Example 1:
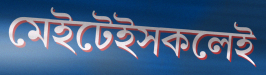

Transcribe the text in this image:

মেইটেইসকলেই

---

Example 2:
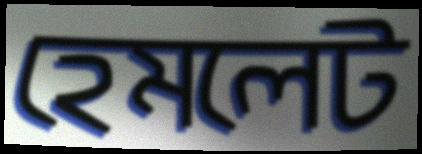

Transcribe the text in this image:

হেমলেট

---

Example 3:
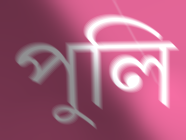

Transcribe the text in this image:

পুলি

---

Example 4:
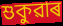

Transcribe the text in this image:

শুকুৱাৰ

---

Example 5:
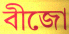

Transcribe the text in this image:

বীজো